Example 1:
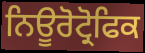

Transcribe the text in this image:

ਨਿਊਰੋਟ੍ਰੋਫਿਕ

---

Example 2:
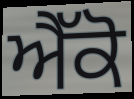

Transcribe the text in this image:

ਐੱਕੋ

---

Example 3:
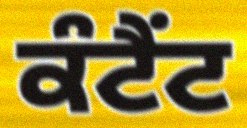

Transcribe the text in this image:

ਕੰਟੈਂਟ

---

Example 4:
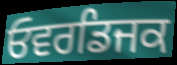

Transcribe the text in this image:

ਓਵਰਡਿਜਕ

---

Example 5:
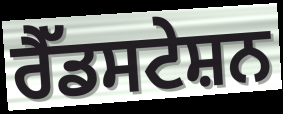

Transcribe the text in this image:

ਰੈੱਡਸਟੇਸ਼ਨ